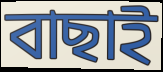
বাছাই